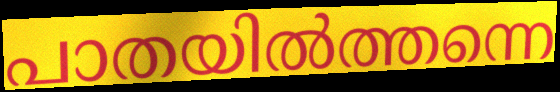
പാതയിൽത്തന്നെ